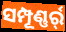
ସମ୍ପୂଣ୍ଣର୍ର୍